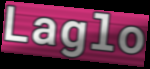
Laglo